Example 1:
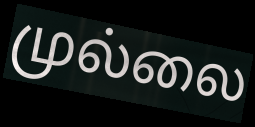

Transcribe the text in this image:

முல்லை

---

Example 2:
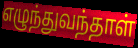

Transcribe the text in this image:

எழுந்துவந்தாள்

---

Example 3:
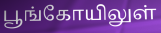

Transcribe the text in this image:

பூங்கோயிலுள்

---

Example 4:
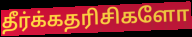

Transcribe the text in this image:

தீர்க்கதரிசிகளோ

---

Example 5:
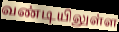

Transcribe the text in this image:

வண்டியிலுள்ள